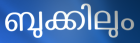
ബുക്കിലും